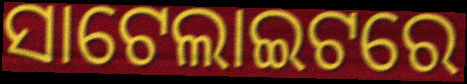
ସାଟେଲାଇଟରେ